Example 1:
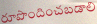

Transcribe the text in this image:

రూపొందించబడాలి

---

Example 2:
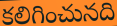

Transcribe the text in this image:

కలిగించునది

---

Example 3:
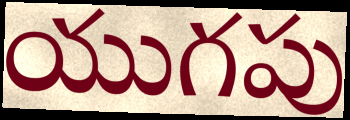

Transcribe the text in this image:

యుగపు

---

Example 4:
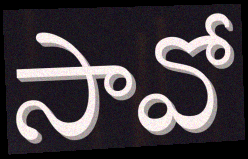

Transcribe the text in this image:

సావో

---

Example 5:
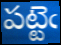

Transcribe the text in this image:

పట్టెఁ